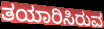
ತಯಾರಿಸಿರುವ